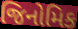
જિનોમિક